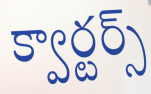
క్వార్టర్స్